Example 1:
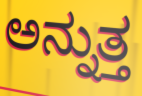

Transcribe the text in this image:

ಅನ್ನುತ್ತ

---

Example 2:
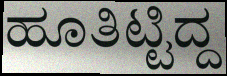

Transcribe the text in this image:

ಹೂತಿಟ್ಟಿದ್ದ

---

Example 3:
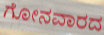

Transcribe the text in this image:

ಗೋನವಾರದ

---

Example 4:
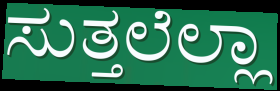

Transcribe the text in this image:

ಸುತ್ತಲೆಲ್ಲಾ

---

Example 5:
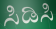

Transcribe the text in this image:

ಸಿಡಿಸಿ